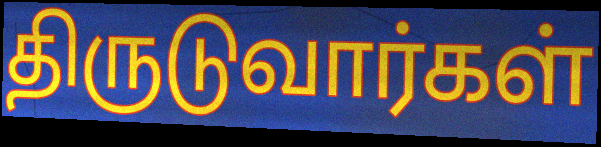
திருடுவார்கள்